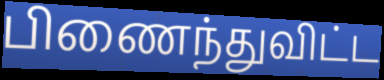
பிணைந்துவிட்ட